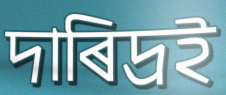
দাৰিদ্ৰই